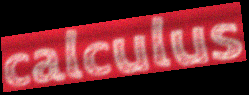
calculus